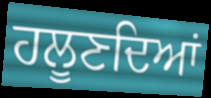
ਹਲੂਣਦਿਆਂ